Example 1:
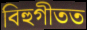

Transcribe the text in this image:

বিহুগীতত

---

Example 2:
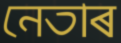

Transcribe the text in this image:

নেতাৰ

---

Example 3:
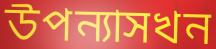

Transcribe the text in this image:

উপন্যাসখন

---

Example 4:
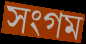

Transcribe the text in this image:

সংগম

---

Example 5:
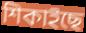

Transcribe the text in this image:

শিকাইছে